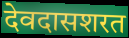
देवदासशरत